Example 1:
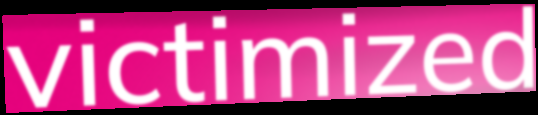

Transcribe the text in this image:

victimized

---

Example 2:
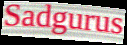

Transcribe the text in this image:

Sadgurus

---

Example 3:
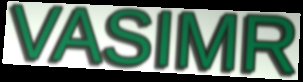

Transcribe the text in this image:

VASIMR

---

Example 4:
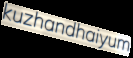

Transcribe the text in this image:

kuzhandhaiyum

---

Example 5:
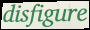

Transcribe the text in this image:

disfigure